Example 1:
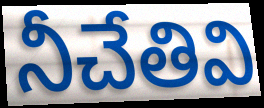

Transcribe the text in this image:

నీచేతివి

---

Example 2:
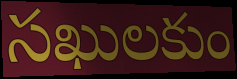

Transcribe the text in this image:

సఖులకుం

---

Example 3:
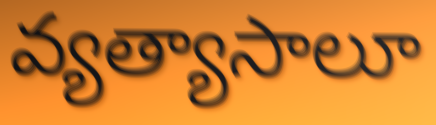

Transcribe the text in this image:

వ్యత్యాసాలూ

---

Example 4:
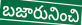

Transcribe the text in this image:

బజారునించి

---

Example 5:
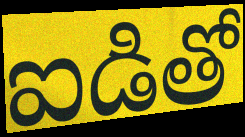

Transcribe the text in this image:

ఐడితో